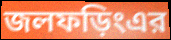
জলফড়িংএর